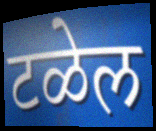
टळेल